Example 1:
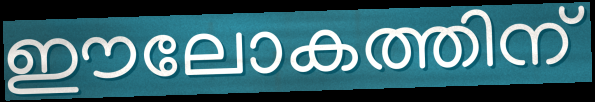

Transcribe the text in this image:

ഈലോകത്തിന്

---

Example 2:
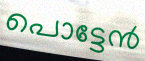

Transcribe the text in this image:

പൊട്ടേൻ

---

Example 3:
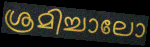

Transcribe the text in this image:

ശ്രമിച്ചാലോ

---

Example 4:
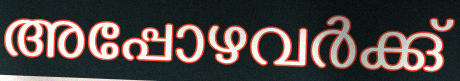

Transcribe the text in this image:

അപ്പോഴവർക്കു്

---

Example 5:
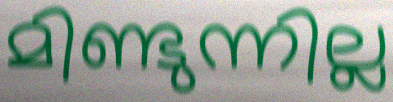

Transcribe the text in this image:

മിണ്ടുന്നില്ല